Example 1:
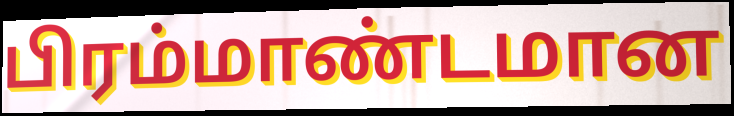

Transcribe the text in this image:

பிரம்மாண்டமான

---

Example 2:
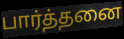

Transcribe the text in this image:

பார்த்தனை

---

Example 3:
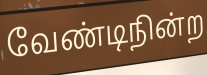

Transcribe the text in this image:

வேண்டிநின்ற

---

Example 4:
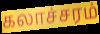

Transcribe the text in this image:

கலாச்சரம்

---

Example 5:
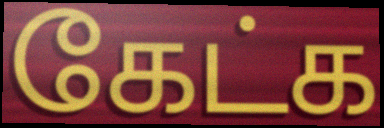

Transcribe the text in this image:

கேட்க